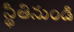
స్థితినుండి